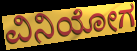
ವಿನಿಯೋಗ